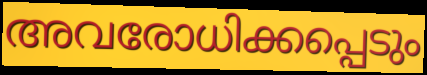
അവരോധിക്കപ്പെടും